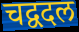
चद्वदल